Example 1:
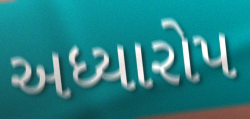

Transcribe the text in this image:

અધ્યારોપ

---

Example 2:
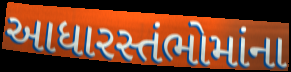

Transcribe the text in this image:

આધારસ્તંભોમાંના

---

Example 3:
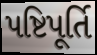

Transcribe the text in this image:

પષ્ટિપૂર્તિ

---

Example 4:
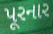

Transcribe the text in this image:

પૂરનાર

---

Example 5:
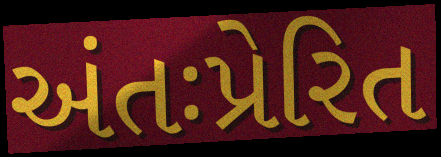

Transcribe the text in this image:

અંતઃપ્રેરિત